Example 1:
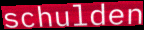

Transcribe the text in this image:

schulden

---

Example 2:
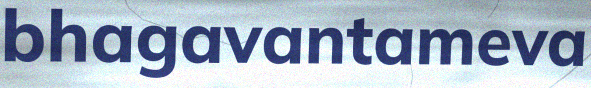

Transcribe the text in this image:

bhagavantameva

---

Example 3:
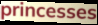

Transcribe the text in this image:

princesses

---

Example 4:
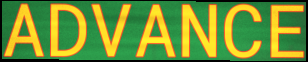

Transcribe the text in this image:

ADVANCE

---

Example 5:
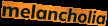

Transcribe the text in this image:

melancholia